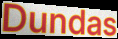
Dundas